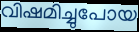
വിഷമിച്ചുപോയ